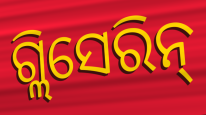
ଗ୍ଲିସେରିନ୍